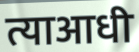
त्याआधी